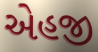
એહજી